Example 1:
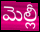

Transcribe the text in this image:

మెల్లీ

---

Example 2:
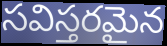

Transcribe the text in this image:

సవిస్తరమైన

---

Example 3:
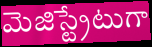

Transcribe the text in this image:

మెజిస్ట్రేటుగా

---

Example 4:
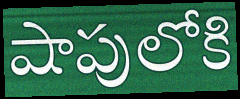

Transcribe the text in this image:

షాపులోకి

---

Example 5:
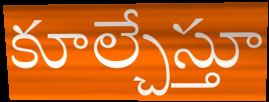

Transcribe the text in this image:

కూల్చేస్తూ